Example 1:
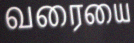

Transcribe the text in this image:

வரையை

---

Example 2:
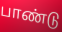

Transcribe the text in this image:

பாண்டு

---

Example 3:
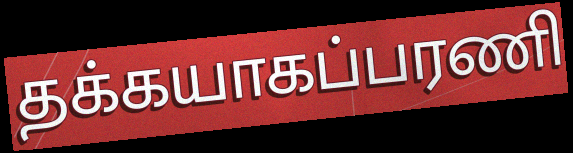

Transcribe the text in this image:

தக்கயாகப்பரணி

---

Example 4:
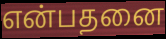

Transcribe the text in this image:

என்பதனை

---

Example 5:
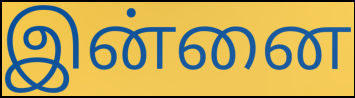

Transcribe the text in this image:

இன்னை